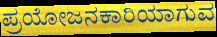
ಪ್ರಯೋಜನಕಾರಿಯಾಗುವ